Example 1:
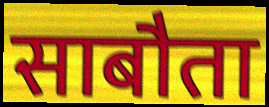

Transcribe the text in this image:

साबौता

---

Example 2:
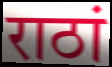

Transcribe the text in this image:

राठां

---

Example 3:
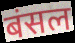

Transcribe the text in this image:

बंसल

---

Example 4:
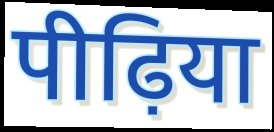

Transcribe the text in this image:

पीढ़िया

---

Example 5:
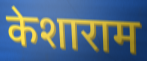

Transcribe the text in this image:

केशाराम